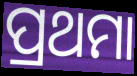
ପ୍ରଥମା